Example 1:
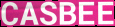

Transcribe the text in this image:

CASBEE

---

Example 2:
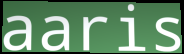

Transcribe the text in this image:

aaris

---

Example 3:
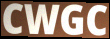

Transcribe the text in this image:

CWGC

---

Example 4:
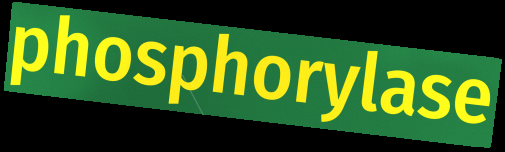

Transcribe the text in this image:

phosphorylase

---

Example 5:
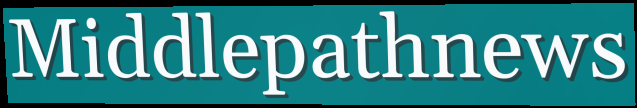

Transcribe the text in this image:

Middlepathnews